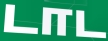
டாட